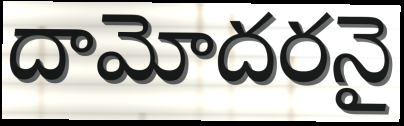
దామోదరనై